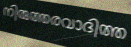
നിരുത്തരവാദിത്ത